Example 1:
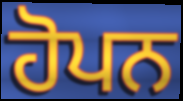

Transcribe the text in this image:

ਹੋਪਨ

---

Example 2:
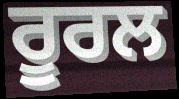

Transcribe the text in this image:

ਰੂਰਲ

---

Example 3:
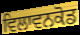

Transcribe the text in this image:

ਵਿਲਾਵਨਕੋਡ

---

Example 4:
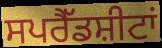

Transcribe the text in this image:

ਸਪਰੈੱਡਸ਼ੀਟਾਂ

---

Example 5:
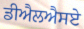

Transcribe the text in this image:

ਡੀਐਲਐਸਏ